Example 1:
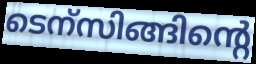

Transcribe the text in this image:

ടെന്സിങ്ങിന്റെ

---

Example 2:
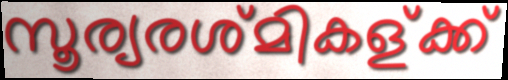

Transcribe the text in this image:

സൂര്യരശ്മികള്ക്ക്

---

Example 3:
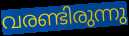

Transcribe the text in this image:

വരണ്ടിരുന്നു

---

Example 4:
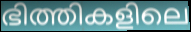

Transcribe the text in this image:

ഭിത്തികളിലെ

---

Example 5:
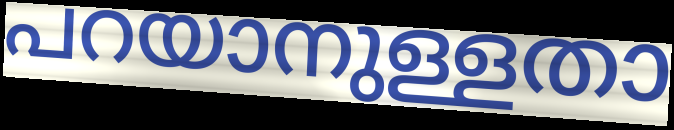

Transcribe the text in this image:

പറയാനുള്ളതാ